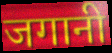
जगानी